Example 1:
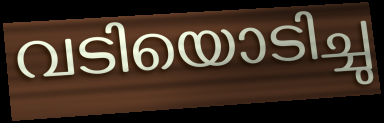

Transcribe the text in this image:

വടിയൊടിച്ചു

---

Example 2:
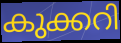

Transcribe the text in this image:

കുക്കറി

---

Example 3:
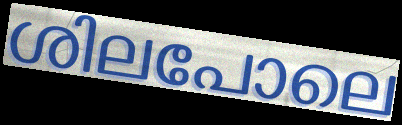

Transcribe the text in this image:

ശിലപോലെ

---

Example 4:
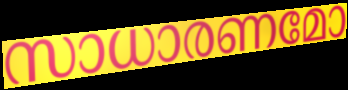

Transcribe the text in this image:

സാധാരണമോ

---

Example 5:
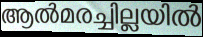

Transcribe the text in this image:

ആൽമരച്ചില്ലയിൽ